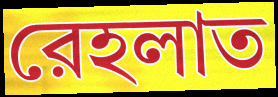
রেহলাত